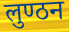
लुण्ठन